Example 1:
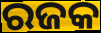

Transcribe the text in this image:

ରଜକ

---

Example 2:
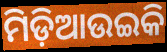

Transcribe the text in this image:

ମିଡ଼ିଆଉଇକି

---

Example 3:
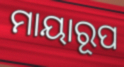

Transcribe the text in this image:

ମାୟାରୂପ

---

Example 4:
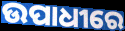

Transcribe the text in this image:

ଉପାଧୀରେ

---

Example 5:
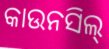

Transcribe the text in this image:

କାଉନସିଲ୍